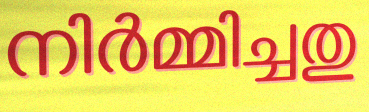
നിർമ്മിച്ചതു